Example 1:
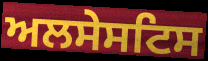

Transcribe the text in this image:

ਅਲਸੇਸਟਿਸ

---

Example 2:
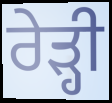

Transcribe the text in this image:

ਰੇੜ੍ਹੀ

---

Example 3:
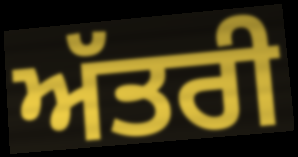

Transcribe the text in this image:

ਅੱਤਰੀ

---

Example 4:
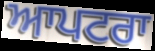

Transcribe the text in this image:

ਆਪਟਰਾ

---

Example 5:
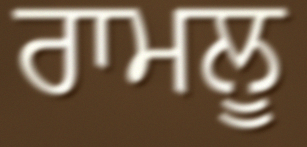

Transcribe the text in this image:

ਰਾਮਲੂ